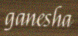
ganesha